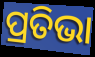
ପ୍ରତିଭା